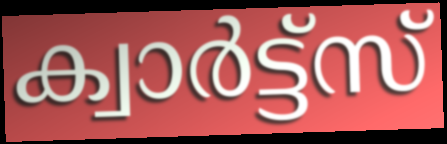
ക്വാർട്ട്സ്